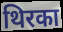
थिरका